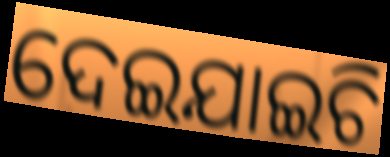
ଦେଇଯାଇଚି